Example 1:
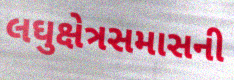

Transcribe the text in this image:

લઘુક્ષેત્રસમાસની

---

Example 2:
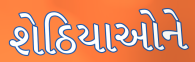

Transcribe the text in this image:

શેઠિયાઓને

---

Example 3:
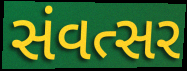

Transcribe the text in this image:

સંવત્સર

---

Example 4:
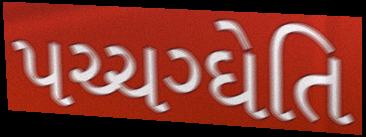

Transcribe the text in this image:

પચ્ચગ્ઘેતિ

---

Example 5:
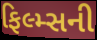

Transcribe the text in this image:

ફિલ્મ્સની